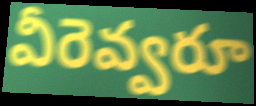
వీరెవ్వరూ